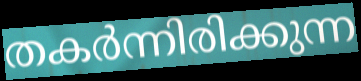
തകർന്നിരിക്കുന്ന